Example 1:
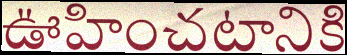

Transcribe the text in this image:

ఊహించటానికి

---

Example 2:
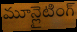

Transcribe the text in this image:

మూన్లైటింగ్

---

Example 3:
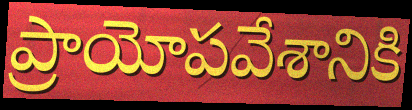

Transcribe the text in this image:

ప్రాయోపవేశానికి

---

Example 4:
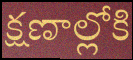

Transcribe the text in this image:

క్షణాల్లోకి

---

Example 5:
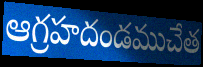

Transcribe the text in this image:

ఆగ్రహదండముచేత